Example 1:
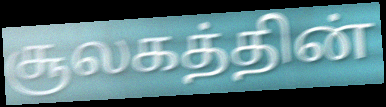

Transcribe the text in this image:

சூலகத்தின்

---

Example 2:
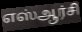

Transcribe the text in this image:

எஸ்ஆர்சி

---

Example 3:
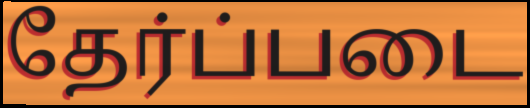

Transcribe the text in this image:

தேர்ப்படை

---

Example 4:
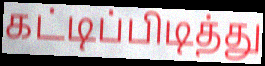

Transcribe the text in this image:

கட்டிப்பிடித்து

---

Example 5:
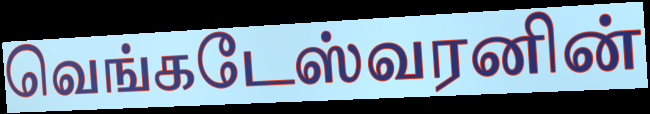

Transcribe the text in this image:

வெங்கடேஸ்வரனின்